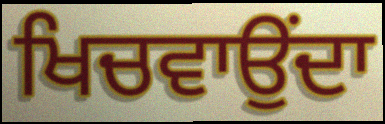
ਖਿਚਵਾਉਂਦਾ